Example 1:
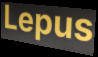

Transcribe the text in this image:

Lepus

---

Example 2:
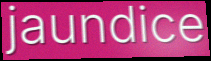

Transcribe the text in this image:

jaundice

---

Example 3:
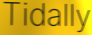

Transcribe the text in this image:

Tidally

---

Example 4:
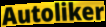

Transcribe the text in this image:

Autoliker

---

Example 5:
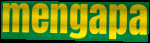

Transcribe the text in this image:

mengapa